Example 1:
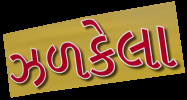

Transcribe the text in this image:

ઝળકેલા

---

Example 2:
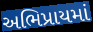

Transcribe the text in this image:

અભિપ્રાયમાં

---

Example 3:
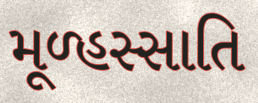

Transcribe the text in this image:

મૂળ્હસ્સાતિ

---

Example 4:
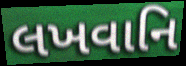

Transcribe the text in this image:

લખવાનિ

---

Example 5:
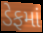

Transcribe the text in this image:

ડેફમાં